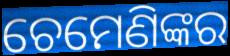
ଚେମେଣିଙ୍କର